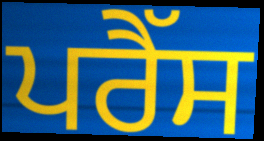
ਪਰੈੱਸ